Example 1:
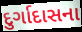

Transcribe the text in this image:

દુર્ગાદાસના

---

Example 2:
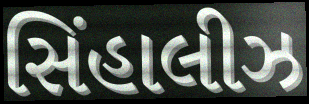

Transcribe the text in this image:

સિંહાલીઝ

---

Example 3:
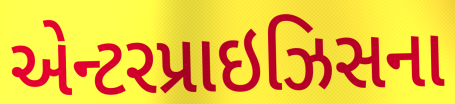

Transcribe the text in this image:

એન્ટરપ્રાઇઝિસના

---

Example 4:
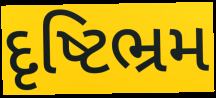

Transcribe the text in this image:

દૃષ્ટિભ્રમ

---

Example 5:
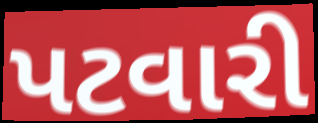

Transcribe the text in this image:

પટવારી